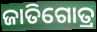
ଜାତିଗୋତ୍ର